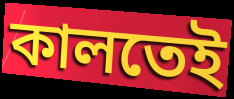
কালতেই